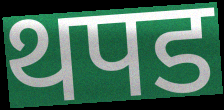
थपड